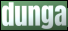
dunga